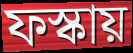
ফস্কায়